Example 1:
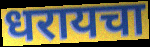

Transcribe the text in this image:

धरायचा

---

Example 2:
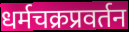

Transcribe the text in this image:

धर्मचक्रप्रवर्तन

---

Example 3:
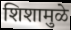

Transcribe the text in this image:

शिशामुळे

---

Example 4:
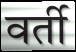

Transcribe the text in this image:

वर्ती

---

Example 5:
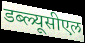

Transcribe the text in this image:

डब्ल्यूसीएल